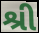
શ્રી